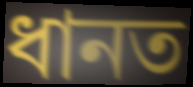
ধানত